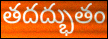
తదద్భుతం